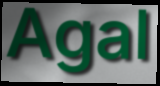
Agal